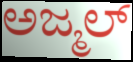
ಅಜ್ಮಲ್